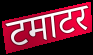
टमाटर